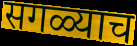
सगळ्याच